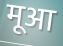
मूआ